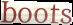
boots